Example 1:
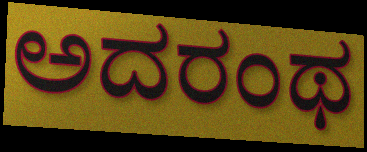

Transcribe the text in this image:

ಅದರಂಥ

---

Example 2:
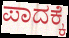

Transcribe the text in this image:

ಪಾದಕ್ಕೆ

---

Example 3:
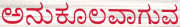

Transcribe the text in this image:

ಅನುಕೂಲವಾಗುವ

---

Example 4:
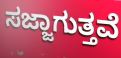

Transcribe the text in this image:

ಸಜ್ಜಾಗುತ್ತವೆ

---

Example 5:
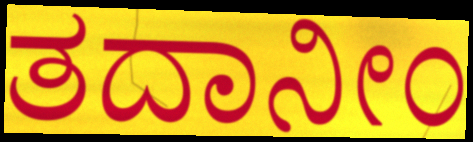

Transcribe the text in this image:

ತದಾನೀಂ